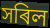
সৰিল